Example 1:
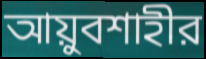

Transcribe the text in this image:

আয়ুবশাহীর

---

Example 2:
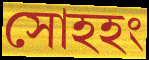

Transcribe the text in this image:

সোহহং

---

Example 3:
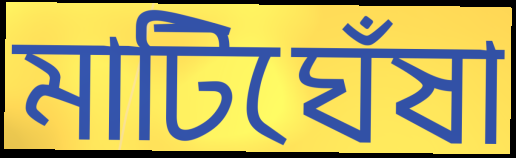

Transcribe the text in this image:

মাটিঘেঁষা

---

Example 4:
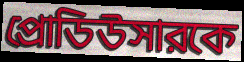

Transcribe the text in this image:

প্রোডিউসারকে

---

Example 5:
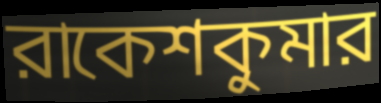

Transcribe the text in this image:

রাকেশকুমার